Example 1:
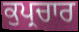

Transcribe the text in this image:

ਕੁਪ੍ਰਚਾਰ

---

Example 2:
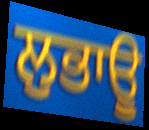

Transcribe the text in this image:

ਲੁਭਾਊ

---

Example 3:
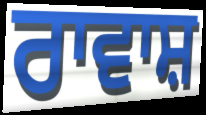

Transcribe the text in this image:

ਰਾਵਾਸ਼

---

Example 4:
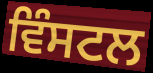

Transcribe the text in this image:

ਵਿੰਸਟਲ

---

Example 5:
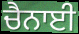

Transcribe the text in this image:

ਚੈਨਾਈ